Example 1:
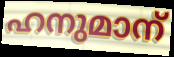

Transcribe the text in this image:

ഹനുമാന്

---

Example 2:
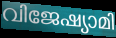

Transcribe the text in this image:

വിജേഷ്യാമി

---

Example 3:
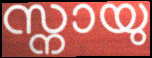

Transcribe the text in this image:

സ്നായു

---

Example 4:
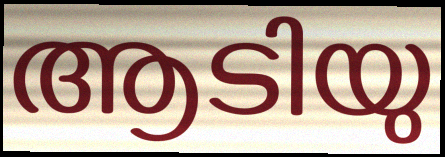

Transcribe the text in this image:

ആടിയു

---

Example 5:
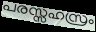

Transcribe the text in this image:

പരസ്സഹസ്രം